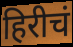
हिरीचं